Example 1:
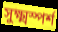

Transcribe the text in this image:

সুক্ষ্মস্পর্শ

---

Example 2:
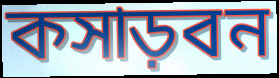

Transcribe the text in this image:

কসাড়বন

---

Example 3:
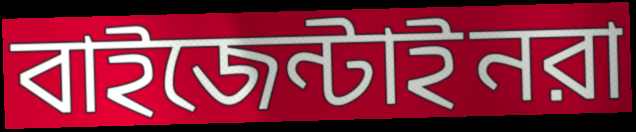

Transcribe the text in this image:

বাইজেন্টাইনরা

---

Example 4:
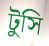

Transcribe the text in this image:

টুসি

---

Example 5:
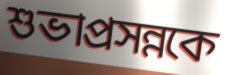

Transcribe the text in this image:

শুভাপ্রসন্নকে